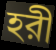
হরী